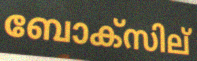
ബോക്സില്